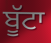
ਬੂੱਟਾ